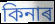
কিনাৰ